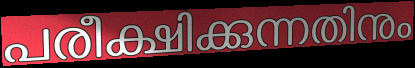
പരീക്ഷിക്കുന്നതിനും